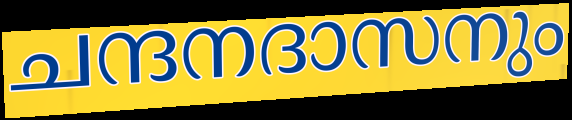
ചന്ദനദാസനും